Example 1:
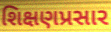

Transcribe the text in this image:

શિક્ષણપ્રસાર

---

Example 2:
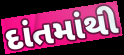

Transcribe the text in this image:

દાંતમાંથી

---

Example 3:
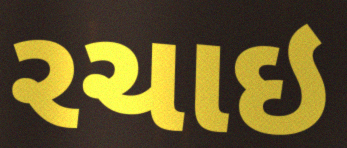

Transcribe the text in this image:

રચાઇ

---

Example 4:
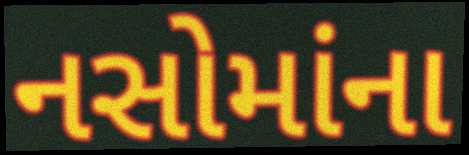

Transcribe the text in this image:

નસોમાંના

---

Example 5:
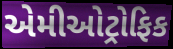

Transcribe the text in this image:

એમીઓટ્રોફિક